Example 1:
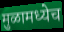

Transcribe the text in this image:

मुळामध्येच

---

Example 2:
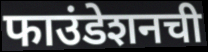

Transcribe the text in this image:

फाउंडेशनची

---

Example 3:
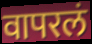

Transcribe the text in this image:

वापरलं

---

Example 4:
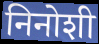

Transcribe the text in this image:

निनोशी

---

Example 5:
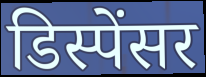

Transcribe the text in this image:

डिस्पेंसर